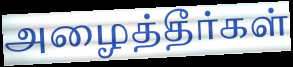
அழைத்தீர்கள்